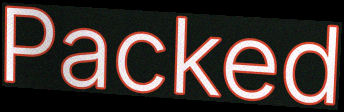
Packed